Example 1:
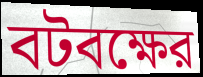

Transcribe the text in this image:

বটবক্ষের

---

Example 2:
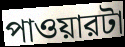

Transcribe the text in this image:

পাওয়ারটা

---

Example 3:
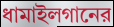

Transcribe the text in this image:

ধামাইলগানের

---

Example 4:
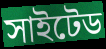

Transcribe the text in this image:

সাইটেড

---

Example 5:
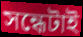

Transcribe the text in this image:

সন্ধেটাই